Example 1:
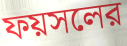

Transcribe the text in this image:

ফয়সলের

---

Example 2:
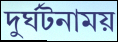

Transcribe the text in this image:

দুর্ঘটনাময়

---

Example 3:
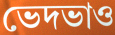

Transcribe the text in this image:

ভেদভাও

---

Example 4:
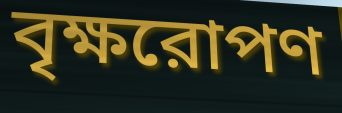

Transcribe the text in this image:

বৃক্ষরোপণ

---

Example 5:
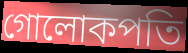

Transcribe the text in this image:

গোলোকপতি